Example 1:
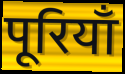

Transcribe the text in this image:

पूरियाँ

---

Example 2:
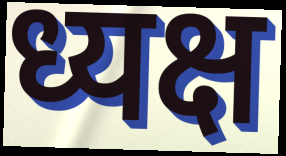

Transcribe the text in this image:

ध्यक्ष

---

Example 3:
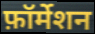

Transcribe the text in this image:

फ़ॉर्मेशन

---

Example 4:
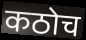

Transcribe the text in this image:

कठोच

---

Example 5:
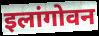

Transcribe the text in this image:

इलांगोवन